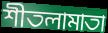
শীতলামাতা